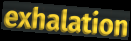
exhalation